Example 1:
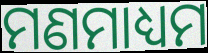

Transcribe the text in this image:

ମଣମାଧ୍ୟମ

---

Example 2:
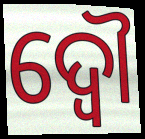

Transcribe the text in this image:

ଦ୍ଵୌ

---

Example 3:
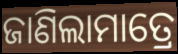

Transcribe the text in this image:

ଜାଣିଲାମାତ୍ରେ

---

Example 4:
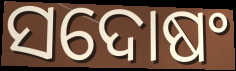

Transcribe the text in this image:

ସଦୋଷଂ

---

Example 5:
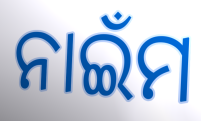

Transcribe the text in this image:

ନାଇଁମ